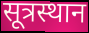
सूत्रस्थान